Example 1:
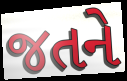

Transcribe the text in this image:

જતને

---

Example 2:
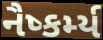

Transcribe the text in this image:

નૈષ્કર્મ્ય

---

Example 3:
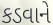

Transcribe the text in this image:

કડવાને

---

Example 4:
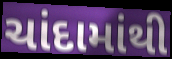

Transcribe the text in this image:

ચાંદામાંથી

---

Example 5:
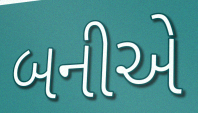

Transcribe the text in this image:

બનીએ